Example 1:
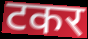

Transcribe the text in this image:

टकर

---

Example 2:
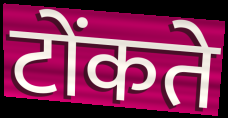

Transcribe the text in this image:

टोंकते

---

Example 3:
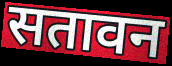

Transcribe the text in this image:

सतावन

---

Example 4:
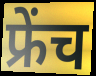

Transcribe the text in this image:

फ्रेंच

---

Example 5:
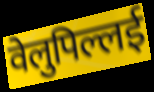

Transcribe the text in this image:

वेलुपिल्लई